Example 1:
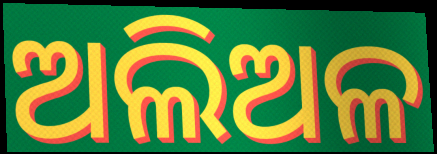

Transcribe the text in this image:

ଅଲିଅଳ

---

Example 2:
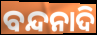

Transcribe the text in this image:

ବନ୍ଦନାଦି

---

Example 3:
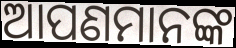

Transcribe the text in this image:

ଆପଣମାନଙ୍କ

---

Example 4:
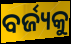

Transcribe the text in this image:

ବର୍ଜ୍ୟକୁ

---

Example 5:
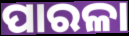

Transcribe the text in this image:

ପାରଳା